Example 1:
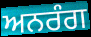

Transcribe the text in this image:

ਅਨਰੰਗ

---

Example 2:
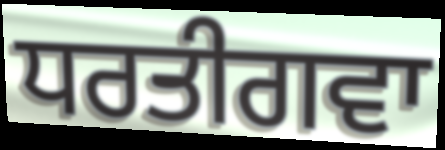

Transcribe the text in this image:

ਧਰਤੀਗਵਾ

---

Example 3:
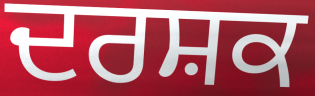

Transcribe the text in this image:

ਦਰਸ਼ਕ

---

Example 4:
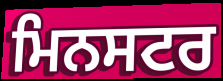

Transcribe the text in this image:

ਮਿਨਸਟਰ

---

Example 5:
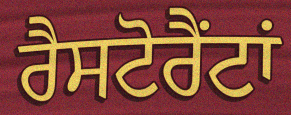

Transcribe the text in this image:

ਰੈਸਟੋਰੈਂਟਾਂ